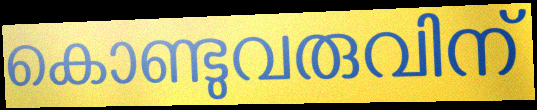
കൊണ്ടുവരുവിന്